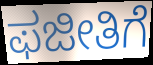
ಫಜೀತಿಗೆ